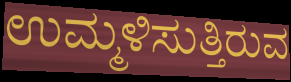
ಉಮ್ಮಳಿಸುತ್ತಿರುವ